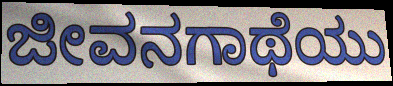
ಜೀವನಗಾಥೆಯು